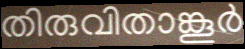
തിരുവിതാങ്കൂർ